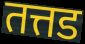
तत्तड